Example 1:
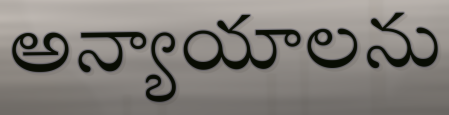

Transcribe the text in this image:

అన్యాయాలను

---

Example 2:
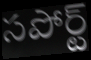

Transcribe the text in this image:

సపోర్ట్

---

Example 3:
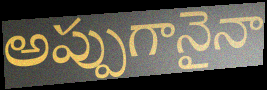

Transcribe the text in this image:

అప్పుగానైనా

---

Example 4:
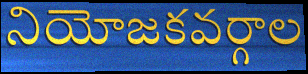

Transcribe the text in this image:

నియోజకవర్గాల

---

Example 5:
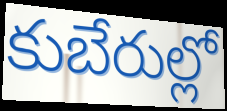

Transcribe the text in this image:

కుబేరుల్లో